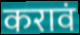
करावं